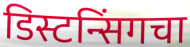
डिस्टन्सिंगचा